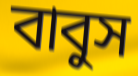
বাবুস